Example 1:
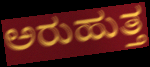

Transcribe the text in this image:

ಅರುಹುತ್ತ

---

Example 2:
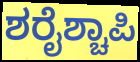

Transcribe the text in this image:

ಶರೈಶ್ಚಾಪಿ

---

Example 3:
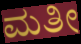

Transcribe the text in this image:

ಮತೀ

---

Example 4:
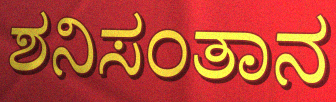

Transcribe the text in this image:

ಶನಿಸಂತಾನ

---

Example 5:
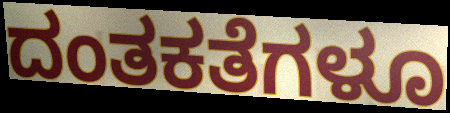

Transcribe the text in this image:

ದಂತಕತೆಗಳೂ